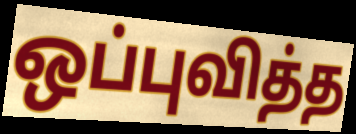
ஒப்புவித்த